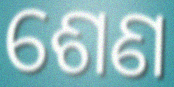
ଶେଣ